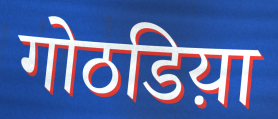
गोठडिय़ा